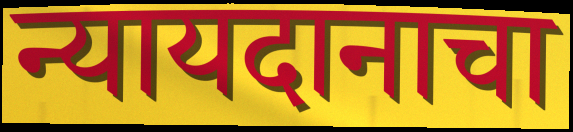
न्यायदानाचा